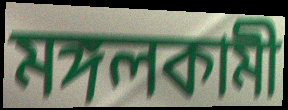
মঙ্গলকামী